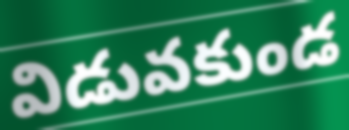
విడువకుండ